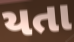
યતા